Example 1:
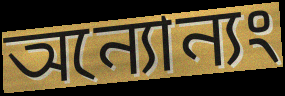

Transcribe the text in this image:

অন্যোন্যং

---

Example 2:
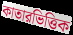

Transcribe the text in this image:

কাতারভিত্তিক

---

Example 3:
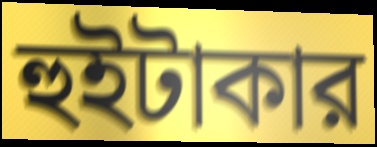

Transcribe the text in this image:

হুইটাকার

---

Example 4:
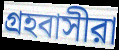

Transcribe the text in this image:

গ্রহবাসীরা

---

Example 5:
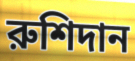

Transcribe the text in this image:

রুশিদান